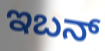
ಇಬನ್